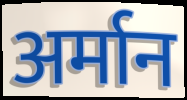
अर्मान